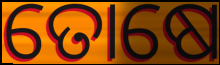
ତୋଷେ